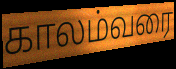
காலம்வரை